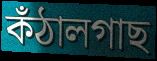
কঁঠালগাছ